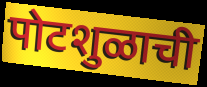
पोटशुळाची